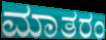
ಮಾತರಂ